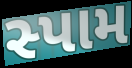
સ્પામ